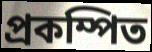
প্রকম্পিত